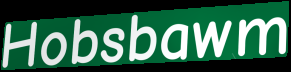
Hobsbawm